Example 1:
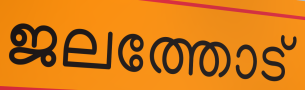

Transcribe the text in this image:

ജലത്തോട്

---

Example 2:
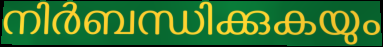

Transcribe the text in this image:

നിർബന്ധിക്കുകയും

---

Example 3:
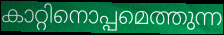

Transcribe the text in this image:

കാറ്റിനൊപ്പമെത്തുന്ന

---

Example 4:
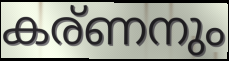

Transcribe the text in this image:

കര്ണനും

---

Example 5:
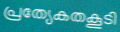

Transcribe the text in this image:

പ്രത്യേകതകൂടി